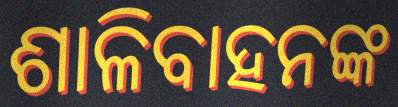
ଶାଳିବାହନଙ୍କ